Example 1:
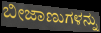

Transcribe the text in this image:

ಬೀಜಾಣುಗಳನ್ನು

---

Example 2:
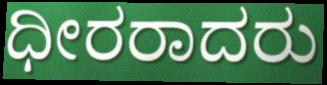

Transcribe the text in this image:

ಧೀರರಾದರು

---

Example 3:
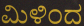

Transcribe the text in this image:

ಮಿಳಿಂದ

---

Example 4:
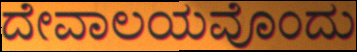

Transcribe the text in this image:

ದೇವಾಲಯವೊಂದು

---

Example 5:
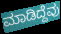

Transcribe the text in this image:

ಮಾಡಿದ್ದೆವು